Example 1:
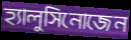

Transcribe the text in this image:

হ্যালুসিনোজেন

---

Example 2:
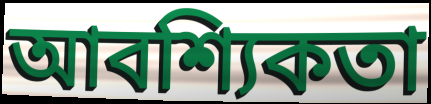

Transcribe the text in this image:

আবশ্যিকতা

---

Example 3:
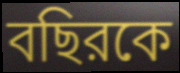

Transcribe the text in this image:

বছিরকে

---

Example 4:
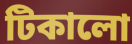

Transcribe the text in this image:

টিকালো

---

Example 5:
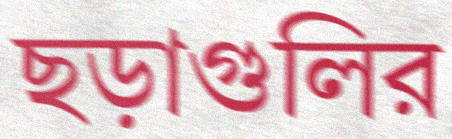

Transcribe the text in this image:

ছড়াগুলির